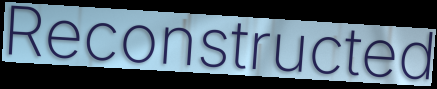
Reconstructed